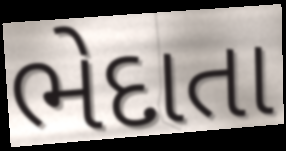
ભેદાતા